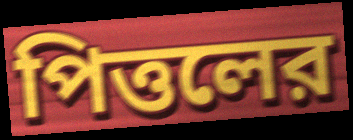
পিত্তলের